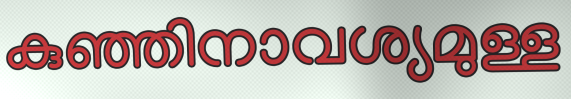
കുഞ്ഞിനാവശ്യമുള്ള